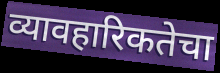
व्यावहारिकतेचा